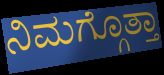
ನಿಮಗ್ಗೊತ್ತಾ